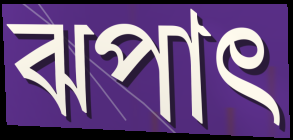
ঝপাৎ